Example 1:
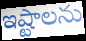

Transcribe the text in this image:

ఇష్టాలను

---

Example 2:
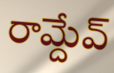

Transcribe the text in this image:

రామ్దేవ్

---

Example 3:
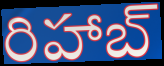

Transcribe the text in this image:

రిహాబ్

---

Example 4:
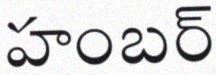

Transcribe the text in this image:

హంబర్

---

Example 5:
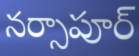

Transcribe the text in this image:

నర్సాపూర్